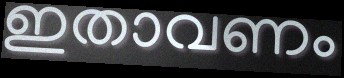
ഇതാവണം